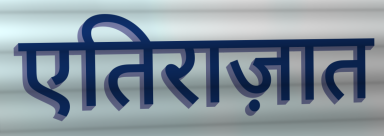
एतिराज़ात